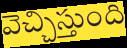
వెచ్చిస్తుంది